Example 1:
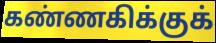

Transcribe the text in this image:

கண்ணகிக்குக்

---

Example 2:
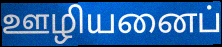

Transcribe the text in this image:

ஊழியனைப்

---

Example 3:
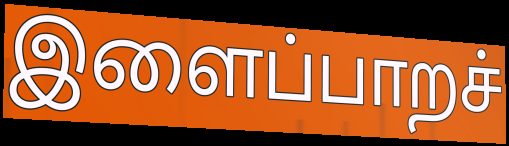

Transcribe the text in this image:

இளைப்பாறச்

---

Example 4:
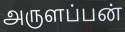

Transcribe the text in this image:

அருளப்பன்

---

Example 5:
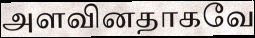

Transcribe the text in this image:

அளவினதாகவே